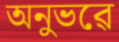
অনুভৱে